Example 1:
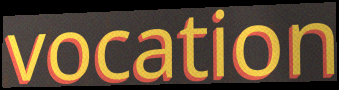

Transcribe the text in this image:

vocation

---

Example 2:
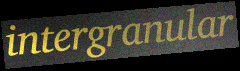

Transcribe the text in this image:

intergranular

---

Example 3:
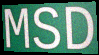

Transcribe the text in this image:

MSD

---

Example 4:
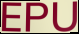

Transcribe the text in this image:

EPU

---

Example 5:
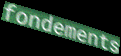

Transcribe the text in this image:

fondements